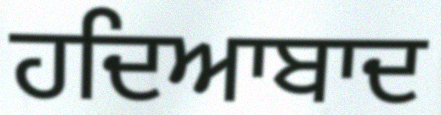
ਹਦਿਆਬਾਦ